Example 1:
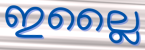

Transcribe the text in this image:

ഇല്ലൈ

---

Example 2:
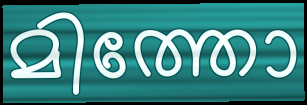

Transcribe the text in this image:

മിത്തോ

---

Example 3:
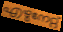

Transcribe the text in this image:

എഴുനേറ്റ്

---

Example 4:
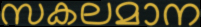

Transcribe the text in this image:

സകലമാന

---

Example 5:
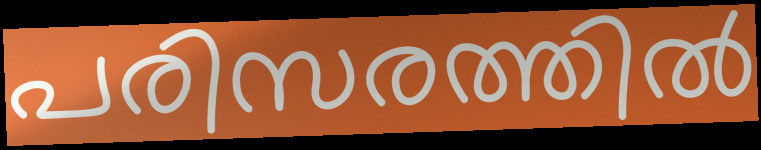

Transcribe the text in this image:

പരിസരത്തിൽ